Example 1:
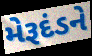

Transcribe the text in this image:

મેરૂદંડને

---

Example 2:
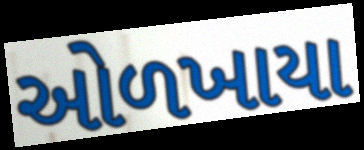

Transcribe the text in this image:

ઓળખાયા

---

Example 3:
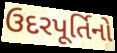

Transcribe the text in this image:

ઉદરપૂર્તિનો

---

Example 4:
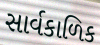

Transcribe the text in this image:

સાર્વકાળિક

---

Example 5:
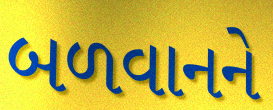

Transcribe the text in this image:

બળવાનને